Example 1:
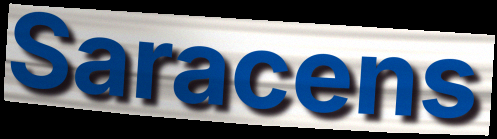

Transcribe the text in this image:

Saracens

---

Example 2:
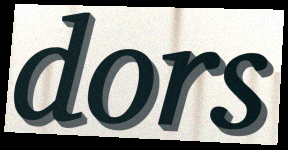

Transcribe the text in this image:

dors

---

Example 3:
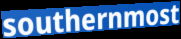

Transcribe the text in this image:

southernmost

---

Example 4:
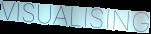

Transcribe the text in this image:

VISUALISING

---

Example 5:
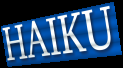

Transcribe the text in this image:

HAIKU